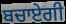
ਬਚਾਏਗੀ